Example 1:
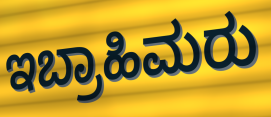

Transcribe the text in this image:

ಇಬ್ರಾಹಿಮರು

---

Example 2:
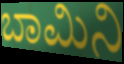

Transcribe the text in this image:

ಬಾಮಿನಿ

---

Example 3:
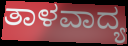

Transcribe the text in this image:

ತಾಳವಾದ್ಯ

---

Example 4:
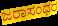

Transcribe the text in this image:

ಜರಾಸಂಧರ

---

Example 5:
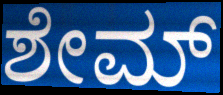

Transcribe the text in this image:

ಶೇಮ್